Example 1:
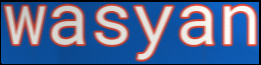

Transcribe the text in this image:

wasyan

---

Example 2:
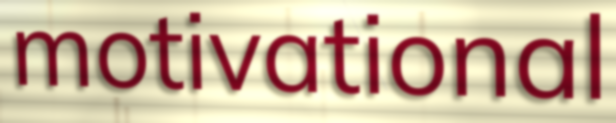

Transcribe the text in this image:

motivational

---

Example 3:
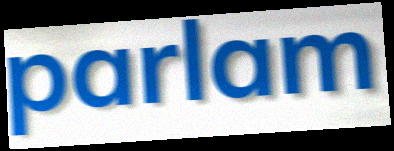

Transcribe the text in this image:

parlam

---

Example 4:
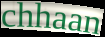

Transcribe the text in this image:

chhaan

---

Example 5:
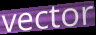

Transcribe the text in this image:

vector